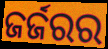
ଜର୍ଜରର